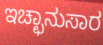
ಇಚ್ಛಾನುಸಾರ